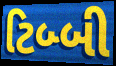
ટિબ્બી